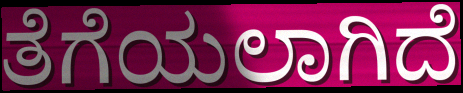
ತೆಗೆಯಲಾಗಿದೆ